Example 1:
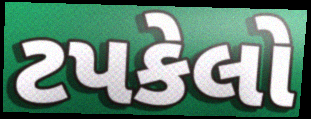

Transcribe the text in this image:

ટપકેલો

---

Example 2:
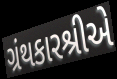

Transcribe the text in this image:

ગ્રંથકારશ્રીએ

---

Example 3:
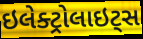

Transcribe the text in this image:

ઇલેક્ટ્રોલાઇટ્સ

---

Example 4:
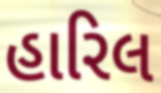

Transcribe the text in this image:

હારિલ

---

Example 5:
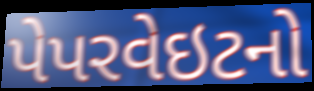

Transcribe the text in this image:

પેપરવેઇટનો